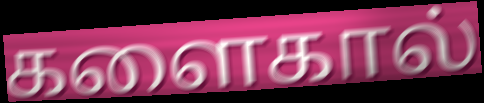
களைகால்